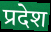
प्रदेश